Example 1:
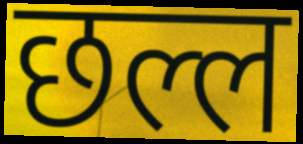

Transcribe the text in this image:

छल्ल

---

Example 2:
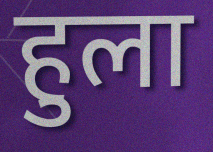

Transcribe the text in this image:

हुला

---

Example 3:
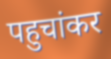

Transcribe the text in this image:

पहुचांकर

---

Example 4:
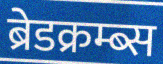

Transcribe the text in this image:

ब्रेडक्रम्ब्स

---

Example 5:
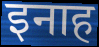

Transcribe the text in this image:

इनाह